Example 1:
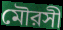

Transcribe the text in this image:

মৌরসী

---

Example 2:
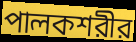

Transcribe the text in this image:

পালকশরীর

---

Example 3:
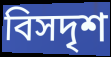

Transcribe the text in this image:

বিসদৃশ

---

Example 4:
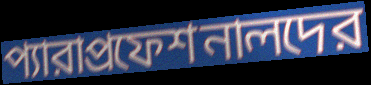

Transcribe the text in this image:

প্যারাপ্রফেশনালদের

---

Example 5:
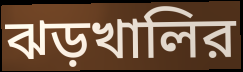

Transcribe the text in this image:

ঝড়খালির